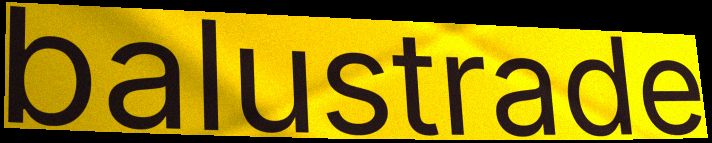
balustrade